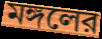
মঙ্গলের